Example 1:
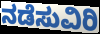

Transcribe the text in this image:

ನಡೆಸುವಿರಿ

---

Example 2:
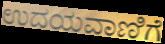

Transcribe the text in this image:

ಉದಯವಾಣಿಗೆ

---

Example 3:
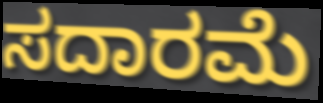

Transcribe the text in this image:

ಸದಾರಮೆ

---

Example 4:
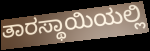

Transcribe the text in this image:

ತಾರಸ್ಥಾಯಿಯಲ್ಲಿ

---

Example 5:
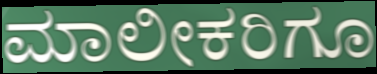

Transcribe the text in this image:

ಮಾಲೀಕರಿಗೂ